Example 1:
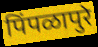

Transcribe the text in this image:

पिंपळापुरे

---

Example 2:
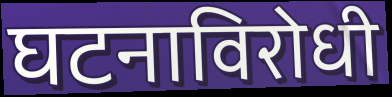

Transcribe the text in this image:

घटनाविरोधी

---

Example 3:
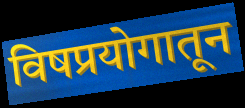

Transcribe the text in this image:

विषप्रयोगातून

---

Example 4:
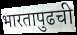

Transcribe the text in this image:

भारतापुढची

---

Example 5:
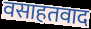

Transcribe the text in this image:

वसाहतवाद